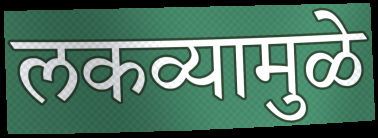
लकव्यामुळे